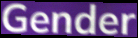
Gender